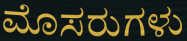
ಮೊಸರುಗಳು